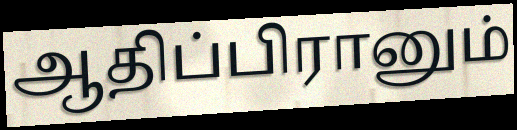
ஆதிப்பிரானும்